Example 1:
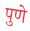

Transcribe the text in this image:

पुणे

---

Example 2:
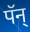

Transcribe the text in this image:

पॅन्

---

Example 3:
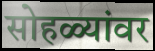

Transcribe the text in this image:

सोहळ्यांवर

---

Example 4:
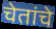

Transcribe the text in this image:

चेतांचे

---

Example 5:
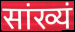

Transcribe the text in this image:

सांख्यं